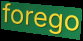
forego